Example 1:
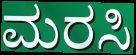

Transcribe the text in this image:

ಮರಸಿ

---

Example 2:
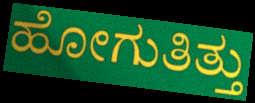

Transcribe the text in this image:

ಹೋಗುತಿತ್ತು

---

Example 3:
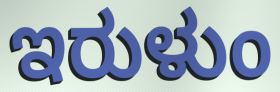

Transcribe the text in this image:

ಇರುಳುಂ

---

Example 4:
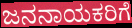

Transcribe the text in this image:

ಜನನಾಯಕರಿಗೆ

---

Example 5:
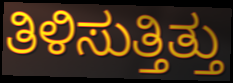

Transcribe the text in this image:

ತಿಳಿಸುತ್ತಿತ್ತು